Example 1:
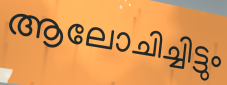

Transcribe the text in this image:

ആലോചിച്ചിട്ടും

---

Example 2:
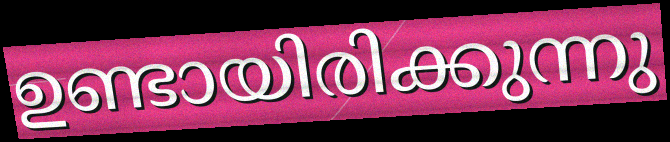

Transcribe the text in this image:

ഉണ്ടായിരിക്കുന്നു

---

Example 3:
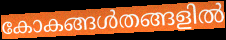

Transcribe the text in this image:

കോകങ്ങൾതങ്ങളിൽ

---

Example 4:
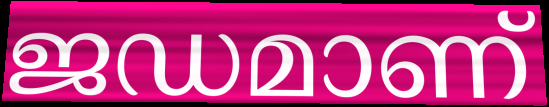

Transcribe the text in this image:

ജഡമാണ്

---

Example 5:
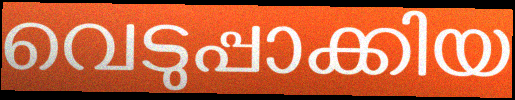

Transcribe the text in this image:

വെടുപ്പാക്കിയ